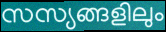
സസ്യങ്ങളിലും